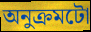
অনুক্ৰমটো